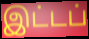
இட்டப்